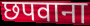
छपवाना